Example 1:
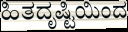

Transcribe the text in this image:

ಹಿತದೃಷ್ಟಿಯಿಂದ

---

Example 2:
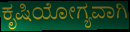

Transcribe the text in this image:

ಕೃಷಿಯೋಗ್ಯವಾಗಿ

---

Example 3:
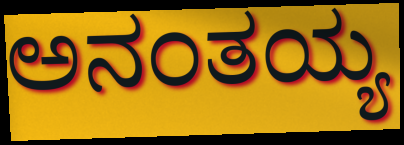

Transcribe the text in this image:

ಅನಂತಯ್ಯ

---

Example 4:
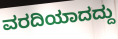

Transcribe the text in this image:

ವರದಿಯಾದದ್ದು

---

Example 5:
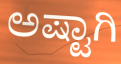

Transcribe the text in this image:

ಅಷ್ಟಾಗಿ